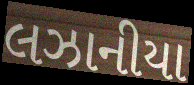
લઝાનીયા